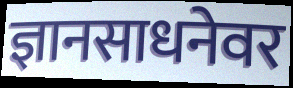
ज्ञानसाधनेवर